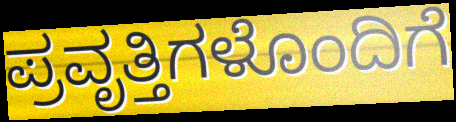
ಪ್ರವೃತ್ತಿಗಳೊಂದಿಗೆ